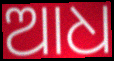
ଆଧ